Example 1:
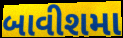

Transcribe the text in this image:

બાવીશમા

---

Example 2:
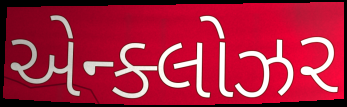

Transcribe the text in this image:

એન્ક્લોઝર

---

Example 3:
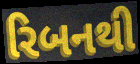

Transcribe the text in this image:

રિબનથી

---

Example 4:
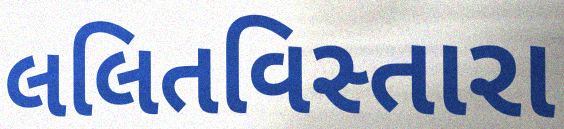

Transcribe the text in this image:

લલિતવિસ્તારા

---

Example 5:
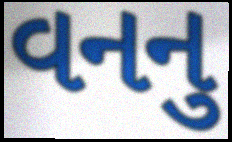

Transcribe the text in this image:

વનનુ